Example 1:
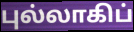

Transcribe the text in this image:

புல்லாகிப்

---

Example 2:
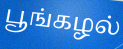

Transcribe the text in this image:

பூங்கழல்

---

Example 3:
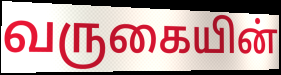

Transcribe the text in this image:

வருகையின்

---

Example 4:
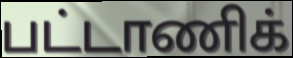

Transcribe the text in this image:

பட்டாணிக்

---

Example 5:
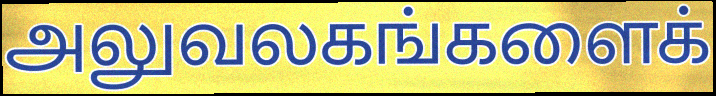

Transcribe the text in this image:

அலுவலகங்களைக்